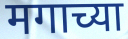
मगाच्या